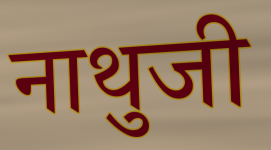
नाथुजी